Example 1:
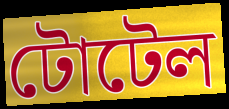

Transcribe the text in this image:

টোটেল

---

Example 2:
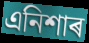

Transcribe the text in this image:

এনিশাৰ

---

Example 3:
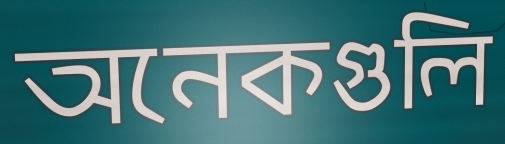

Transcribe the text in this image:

অনেকগুলি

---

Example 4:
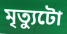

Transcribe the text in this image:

মৃত্যুটো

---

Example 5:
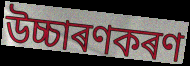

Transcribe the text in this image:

উচ্চাৰণকৰণ